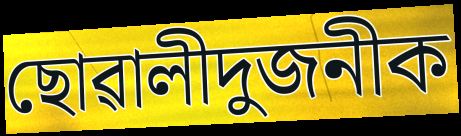
ছোৱালীদুজনীক